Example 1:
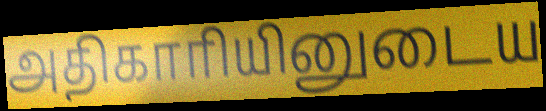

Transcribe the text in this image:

அதிகாரியினுடைய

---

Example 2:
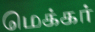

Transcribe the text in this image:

மெக்கர்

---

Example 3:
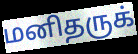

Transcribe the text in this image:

மனிதருக்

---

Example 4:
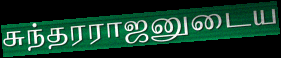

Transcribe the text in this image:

சுந்தரராஜனுடைய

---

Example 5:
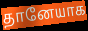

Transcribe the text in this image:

தானேயாக